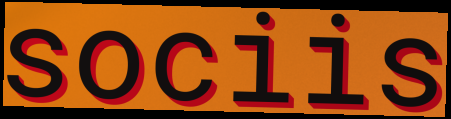
sociis